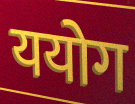
ययोग